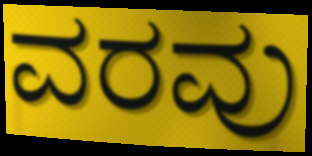
ವರವು